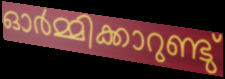
ഓർമ്മിക്കാറുണ്ടു്